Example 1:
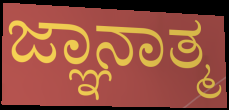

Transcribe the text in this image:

ಜ್ಞಾನಾತ್ಮ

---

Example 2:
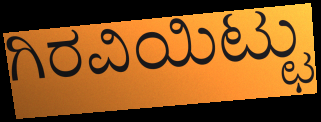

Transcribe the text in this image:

ಗಿರವಿಯಿಟ್ಟು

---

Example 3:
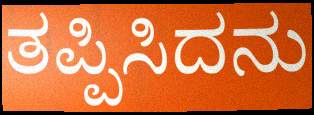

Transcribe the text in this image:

ತಪ್ಪಿಸಿದನು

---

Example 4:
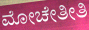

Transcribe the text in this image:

ಮೋಚೇತೀತಿ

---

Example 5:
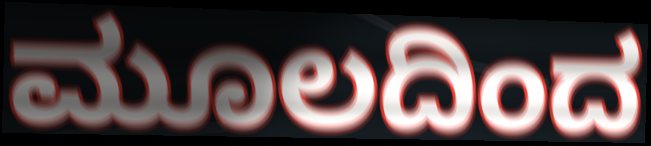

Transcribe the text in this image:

ಮೂಲದಿಂದ